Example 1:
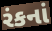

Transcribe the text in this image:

રંકનાં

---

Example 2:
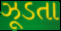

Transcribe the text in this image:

ઝૂડતા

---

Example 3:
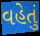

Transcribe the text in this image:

વહેતું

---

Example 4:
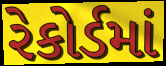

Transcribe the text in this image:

રેકોર્ડમાં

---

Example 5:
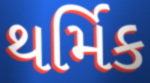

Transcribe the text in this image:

થર્મિક